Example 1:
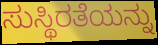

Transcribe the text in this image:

ಸುಸ್ಥಿರತೆಯನ್ನು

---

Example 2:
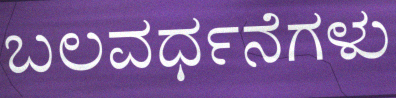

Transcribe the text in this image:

ಬಲವರ್ಧನೆಗಳು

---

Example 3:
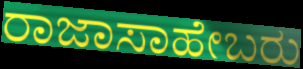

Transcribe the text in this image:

ರಾಜಾಸಾಹೇಬರು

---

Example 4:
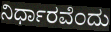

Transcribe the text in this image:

ನಿರ್ಧಾರವೆಂದು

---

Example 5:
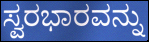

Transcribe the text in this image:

ಸ್ವರಭಾರವನ್ನು